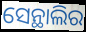
ସେନ୍ଥାଲିର